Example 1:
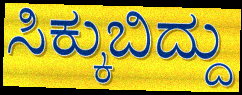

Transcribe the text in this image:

ಸಿಕ್ಕುಬಿದ್ದು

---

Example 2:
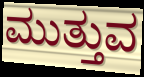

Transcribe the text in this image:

ಮುತ್ತುವ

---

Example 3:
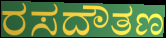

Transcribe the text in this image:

ರಸದೌತಣ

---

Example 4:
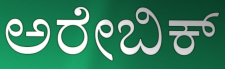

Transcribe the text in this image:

ಅರೇಬಿಕ್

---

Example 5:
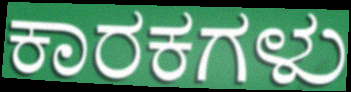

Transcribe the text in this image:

ಕಾರಕಗಳು